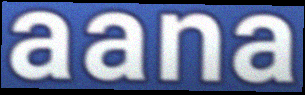
aana